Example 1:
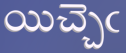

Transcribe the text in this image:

యిచ్చెఁ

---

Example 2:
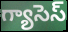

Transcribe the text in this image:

గ్యాసెస్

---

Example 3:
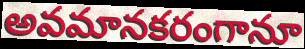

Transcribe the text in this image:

అవమానకరంగానూ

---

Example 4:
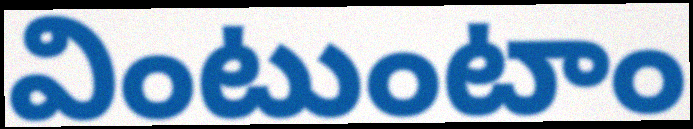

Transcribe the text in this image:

వింటుంటాం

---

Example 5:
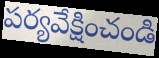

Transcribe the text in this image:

పర్యవేక్షించండి